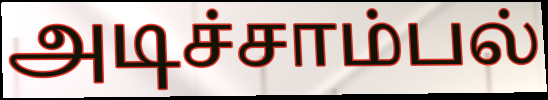
அடிச்சாம்பல்